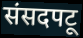
संसदपटू